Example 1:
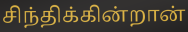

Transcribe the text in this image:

சிந்திக்கின்றான்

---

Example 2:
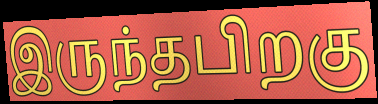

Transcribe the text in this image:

இருந்தபிறகு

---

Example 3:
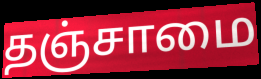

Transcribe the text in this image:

தஞ்சாமை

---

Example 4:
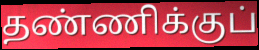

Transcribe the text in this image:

தண்ணிக்குப்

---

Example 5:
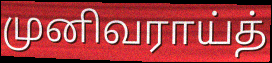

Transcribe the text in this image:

முனிவராய்த்